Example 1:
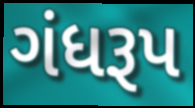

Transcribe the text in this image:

ગંધરૂપ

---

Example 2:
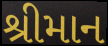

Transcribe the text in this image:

શ્રીમાન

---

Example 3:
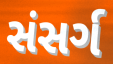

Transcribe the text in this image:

સંસર્ગ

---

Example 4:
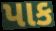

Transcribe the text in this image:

પાક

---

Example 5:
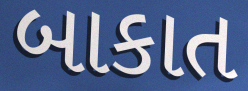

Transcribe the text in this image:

બાકાત